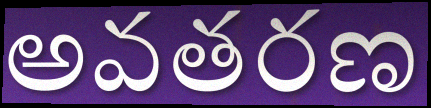
అవతరణ